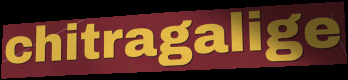
chitragalige